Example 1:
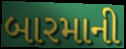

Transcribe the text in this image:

બારમાની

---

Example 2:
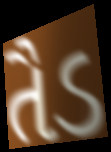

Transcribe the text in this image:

તૈડ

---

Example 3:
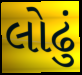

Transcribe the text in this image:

લોઢું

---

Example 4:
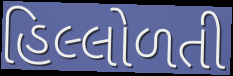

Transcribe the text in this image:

હિલ્લોળતી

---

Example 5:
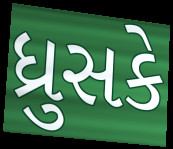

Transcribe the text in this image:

ધ્રુસકે